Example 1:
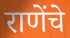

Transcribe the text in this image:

राणेंचे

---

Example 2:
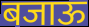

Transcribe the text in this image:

बजाऊ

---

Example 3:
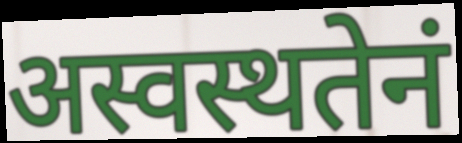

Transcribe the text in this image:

अस्वस्थतेनं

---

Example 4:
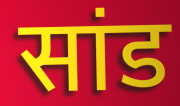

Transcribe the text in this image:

सांड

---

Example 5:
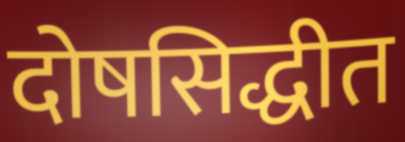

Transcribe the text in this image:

दोषसिद्धीत